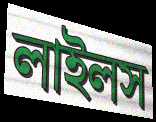
লাইলস